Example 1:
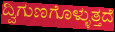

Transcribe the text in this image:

ದ್ವಿಗುಣಗೊಳ್ಳುತ್ತದೆ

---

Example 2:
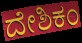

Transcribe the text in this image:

ದೇಶಿಕಂ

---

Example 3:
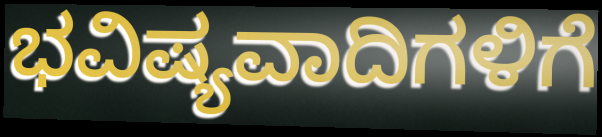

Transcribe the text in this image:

ಭವಿಷ್ಯವಾದಿಗಳಿಗೆ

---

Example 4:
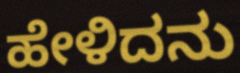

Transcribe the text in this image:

ಹೇಳಿದನು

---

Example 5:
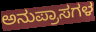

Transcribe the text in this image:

ಅನುಪ್ರಾಸಗಳ